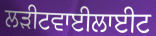
ਲੜੀਟਵਾਈਲਾਈਟ